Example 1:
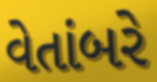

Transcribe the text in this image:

વેતાંબરે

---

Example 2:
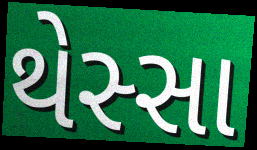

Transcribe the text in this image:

થેસ્સા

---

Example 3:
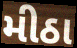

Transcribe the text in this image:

મીઠા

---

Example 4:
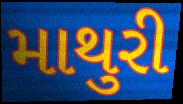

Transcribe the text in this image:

માથુરી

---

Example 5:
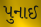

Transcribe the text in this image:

પુનાઈ